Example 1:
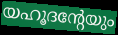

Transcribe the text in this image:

യഹൂദന്റേയും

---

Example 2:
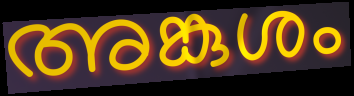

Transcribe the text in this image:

അങ്കുശം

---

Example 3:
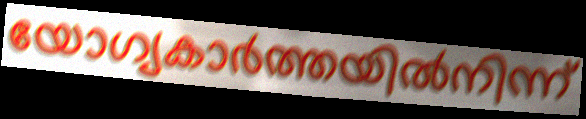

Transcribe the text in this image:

യോഗ്യകാർത്തയിൽനിന്ന്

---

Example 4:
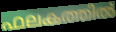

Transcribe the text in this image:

ഫലകത്തിൽ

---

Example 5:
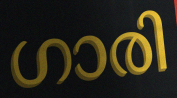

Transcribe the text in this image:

ഗാരി